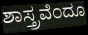
ಶಾಸ್ತ್ರವೆಂದೂ